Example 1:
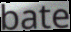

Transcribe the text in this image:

bate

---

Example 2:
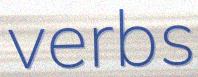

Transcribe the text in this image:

verbs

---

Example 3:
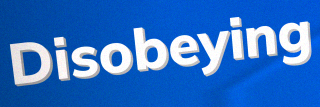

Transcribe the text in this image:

Disobeying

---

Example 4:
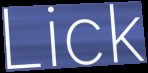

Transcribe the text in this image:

Lick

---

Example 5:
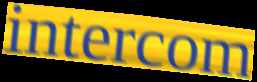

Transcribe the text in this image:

intercom